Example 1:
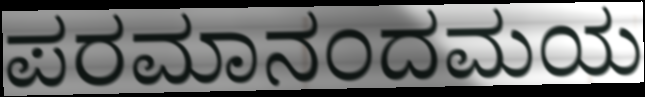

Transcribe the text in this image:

ಪರಮಾನಂದಮಯ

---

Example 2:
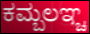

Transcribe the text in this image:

ಕಮ್ಬಲಞ್ಚ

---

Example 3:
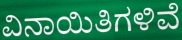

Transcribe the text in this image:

ವಿನಾಯಿತಿಗಳಿವೆ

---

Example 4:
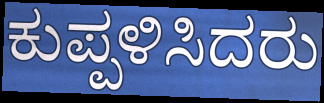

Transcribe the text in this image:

ಕುಪ್ಪಳಿಸಿದರು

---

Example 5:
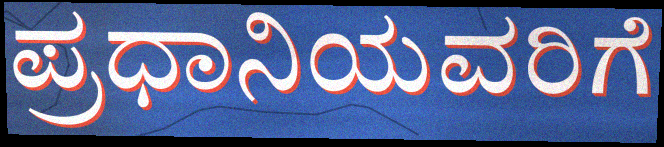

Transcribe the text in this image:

ಪ್ರಧಾನಿಯವರಿಗೆ